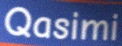
Qasimi